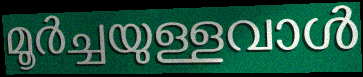
മൂർച്ചയുള്ളവാൾ